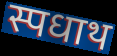
स्पधाथ